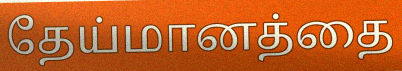
தேய்மானத்தை